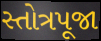
સ્તોત્રપૂજા